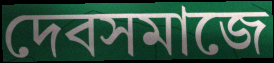
দেবসমাজে